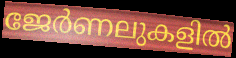
ജേർണലുകളിൽ